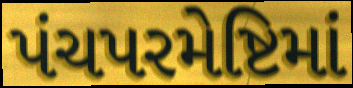
પંચપરમેષ્ટિમાં